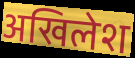
अखिलेश